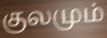
குலமும்